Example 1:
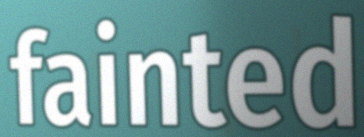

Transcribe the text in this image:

fainted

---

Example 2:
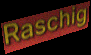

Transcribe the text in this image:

Raschig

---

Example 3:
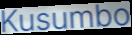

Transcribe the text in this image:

Kusumbo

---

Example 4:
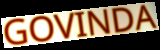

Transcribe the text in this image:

GOVINDA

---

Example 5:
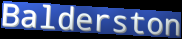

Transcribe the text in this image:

Balderston